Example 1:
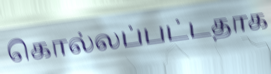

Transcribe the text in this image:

கொல்லப்பட்டதாக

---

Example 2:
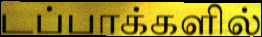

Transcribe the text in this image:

டப்பாக்களில்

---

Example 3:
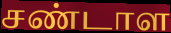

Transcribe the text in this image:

சண்டாள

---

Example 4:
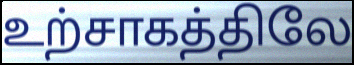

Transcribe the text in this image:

உற்சாகத்திலே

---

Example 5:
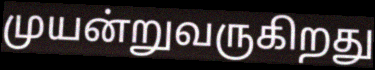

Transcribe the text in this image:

முயன்றுவருகிறது